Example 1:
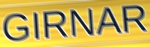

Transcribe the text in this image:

GIRNAR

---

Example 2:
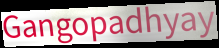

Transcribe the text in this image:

Gangopadhyay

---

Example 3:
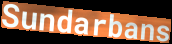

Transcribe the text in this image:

Sundarbans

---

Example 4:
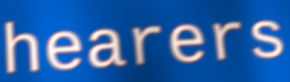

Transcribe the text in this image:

hearers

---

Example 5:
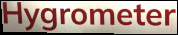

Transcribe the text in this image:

Hygrometer